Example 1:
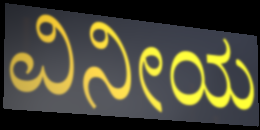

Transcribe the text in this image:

ವಿನೀಯ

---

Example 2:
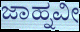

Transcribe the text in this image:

ಜಾಹ್ನವೀ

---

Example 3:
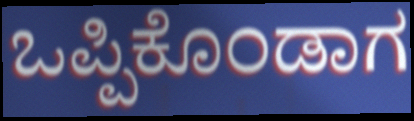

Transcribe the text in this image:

ಒಪ್ಪಿಕೊಂಡಾಗ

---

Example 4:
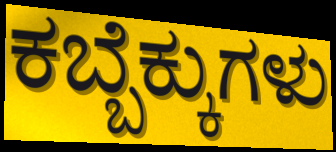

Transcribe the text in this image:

ಕಬ್ಬೆಕ್ಕುಗಳು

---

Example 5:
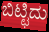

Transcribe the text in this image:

ಬಿಟ್ಟಿದು